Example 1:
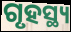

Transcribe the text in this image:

ଗୃହସ୍ଥ୍ୟ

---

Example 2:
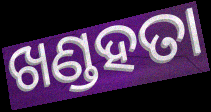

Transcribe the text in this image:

ଖଣ୍ଡହତା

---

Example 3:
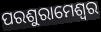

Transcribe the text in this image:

ପରଶୁରାମେଶ୍ୱର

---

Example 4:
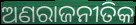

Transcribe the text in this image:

ଅଣରାଜନୀତିକ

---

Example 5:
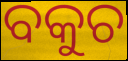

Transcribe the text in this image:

ବକୁଚ